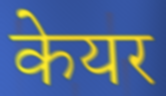
केयर